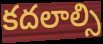
కదలాల్సి